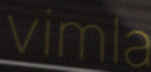
vimla